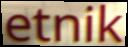
etnik